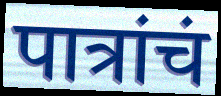
पात्रांचं